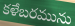
కళేబరమును